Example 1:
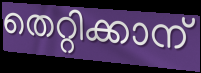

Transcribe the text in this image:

തെറ്റിക്കാന്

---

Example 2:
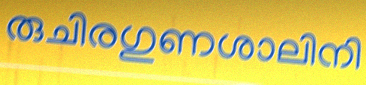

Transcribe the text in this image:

രുചിരഗുണശാലിനി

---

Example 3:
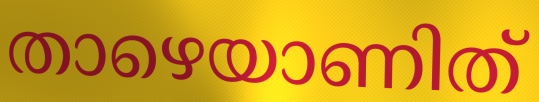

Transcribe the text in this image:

താഴെയാണിത്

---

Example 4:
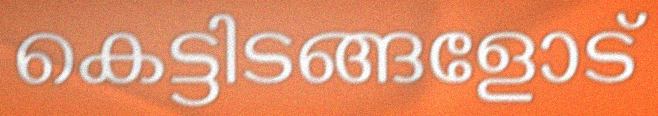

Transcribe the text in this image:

കെട്ടിടങ്ങളോട്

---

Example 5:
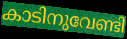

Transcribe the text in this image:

കാടിനുവേണ്ടി